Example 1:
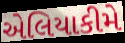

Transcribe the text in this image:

એલિયાકીમે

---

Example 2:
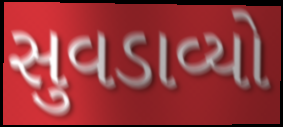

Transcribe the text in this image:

સુવડાવ્યો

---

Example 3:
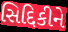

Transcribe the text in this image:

સિદ્દિકીને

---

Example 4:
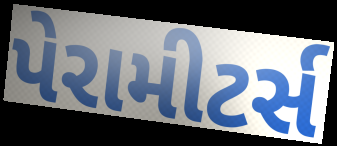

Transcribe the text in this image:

પેરામીટર્સ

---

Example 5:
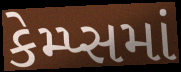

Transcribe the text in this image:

કેમ્પ્સમાં